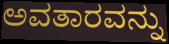
ಅವತಾರವನ್ನು